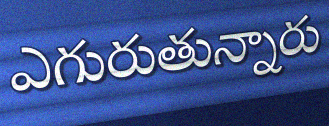
ఎగురుతున్నారు